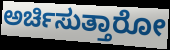
ಅರ್ಚಿಸುತ್ತಾರೋ